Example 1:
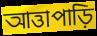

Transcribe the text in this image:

আত্তাপাড়ি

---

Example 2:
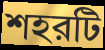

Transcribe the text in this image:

শহরটি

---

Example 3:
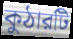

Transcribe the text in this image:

কুঠারটি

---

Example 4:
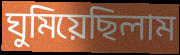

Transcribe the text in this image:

ঘুমিয়েছিলাম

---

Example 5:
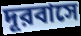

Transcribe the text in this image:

দূরবাসে